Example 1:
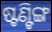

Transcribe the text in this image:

ଷ୍ଟଣ୍ଟିଙ୍ଗ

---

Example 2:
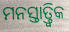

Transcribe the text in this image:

ମନସ୍ତାତ୍ତ୍ୱିକ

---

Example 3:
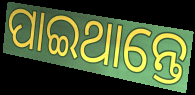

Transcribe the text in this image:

ପାଇଥାନ୍ତେ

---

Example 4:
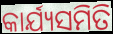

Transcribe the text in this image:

କାର୍ଯ୍ୟସମିତି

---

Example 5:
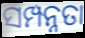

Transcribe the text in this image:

ସମ୍ପନ୍ନତା